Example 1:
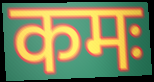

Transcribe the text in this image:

कमः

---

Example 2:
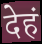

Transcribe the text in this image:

देहं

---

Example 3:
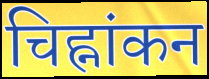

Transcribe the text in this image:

चिह्नांकन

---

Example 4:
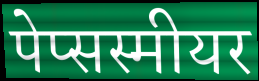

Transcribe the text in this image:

पेप्सस्मीयर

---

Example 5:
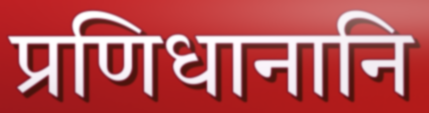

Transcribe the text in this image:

प्रणिधानानि